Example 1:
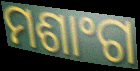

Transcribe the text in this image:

ମଶାଂଗ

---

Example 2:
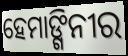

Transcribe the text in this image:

ହେମାଙ୍ଗିନୀର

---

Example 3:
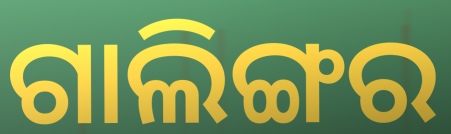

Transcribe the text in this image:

ଗାଲିଙ୍ଗର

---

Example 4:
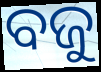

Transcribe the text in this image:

ବଜୁ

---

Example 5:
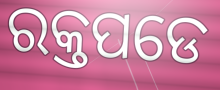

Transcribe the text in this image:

ରକ୍ତପଡେ